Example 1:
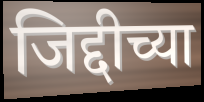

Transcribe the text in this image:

जिद्दीच्या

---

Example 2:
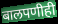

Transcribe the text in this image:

बालपणीही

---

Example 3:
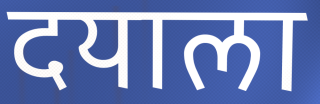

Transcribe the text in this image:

दयाला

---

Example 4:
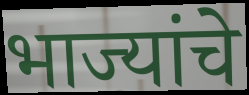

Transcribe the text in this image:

भाज्यांचे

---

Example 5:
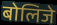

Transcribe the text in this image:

बोलिजे